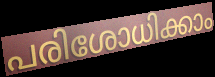
പരിശോധിക്കാം